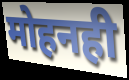
मोहनही